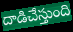
దాడిచేస్తుంది